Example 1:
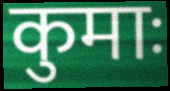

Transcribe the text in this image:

कुमाः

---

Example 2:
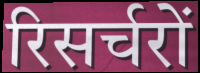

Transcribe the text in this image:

रिसर्चरों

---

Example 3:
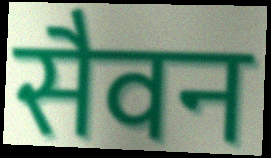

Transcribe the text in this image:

सैवन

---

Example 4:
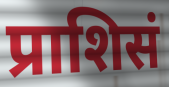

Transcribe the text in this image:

प्राशिसं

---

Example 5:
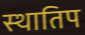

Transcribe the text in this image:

स्थातिप